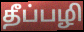
தீப்பழி